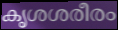
കൃശശരീരം